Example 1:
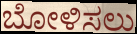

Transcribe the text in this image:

ಬೋಳಿಸಲು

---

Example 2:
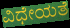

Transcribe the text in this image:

ವಿಧೇಯತೆ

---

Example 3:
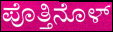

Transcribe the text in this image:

ಪೊತ್ತಿನೊಳ್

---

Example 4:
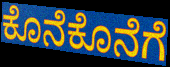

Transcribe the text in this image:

ಕೊನೆಕೊನೆಗೆ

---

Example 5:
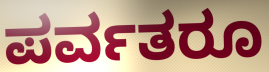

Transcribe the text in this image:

ಪರ್ವತರೂ